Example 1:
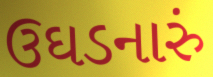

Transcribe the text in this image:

ઉઘડનારું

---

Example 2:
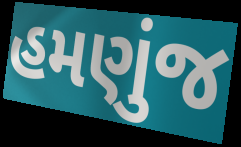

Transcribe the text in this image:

હમણુંજ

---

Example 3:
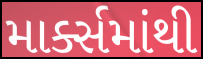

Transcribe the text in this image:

માર્ક્સમાંથી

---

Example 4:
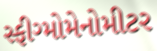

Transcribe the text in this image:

સ્ફીગ્મોમેનોમીટર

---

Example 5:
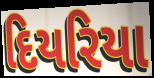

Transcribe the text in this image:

દિયરિયા